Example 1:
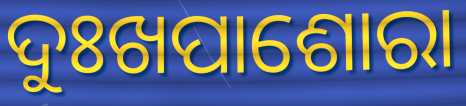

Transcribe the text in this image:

ଦୁଃଖପାଶୋରା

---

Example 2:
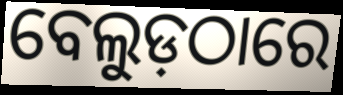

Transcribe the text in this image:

ବେଲୁଡ଼ଠାରେ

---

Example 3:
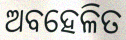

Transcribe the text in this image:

ଅବହେଳିତ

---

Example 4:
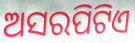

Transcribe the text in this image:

ଅସରପିଟିଏ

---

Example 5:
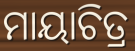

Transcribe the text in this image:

ମାୟାଚିତ୍ର